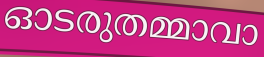
ഓടരുതമ്മാവാ